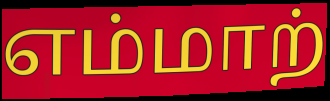
எம்மாற்